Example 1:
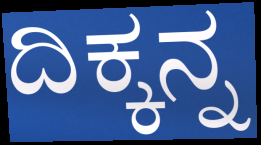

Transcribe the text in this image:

ದಿಕ್ಕನ್ನ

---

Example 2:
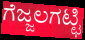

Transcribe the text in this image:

ಗೆಜ್ಜಲಗಟ್ಟಿ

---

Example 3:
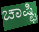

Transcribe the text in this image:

ಚಾಷ್ಟಿ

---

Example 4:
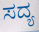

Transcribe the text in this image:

ಸದ್ಯ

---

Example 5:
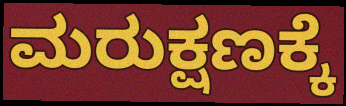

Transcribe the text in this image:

ಮರುಕ್ಷಣಕ್ಕೆ